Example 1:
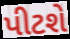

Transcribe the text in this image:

પીટશે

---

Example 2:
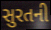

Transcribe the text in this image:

સુરતની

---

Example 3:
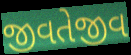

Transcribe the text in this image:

જીવતેજીવ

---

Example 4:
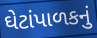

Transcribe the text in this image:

ઘેટાંપાળકનું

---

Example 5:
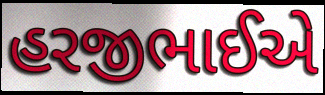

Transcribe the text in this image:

હરજીભાઈએ